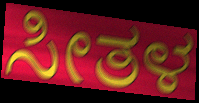
ಸೀತಳ